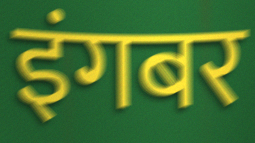
इंगबर